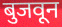
बुजवून